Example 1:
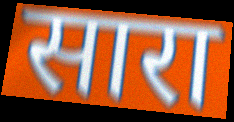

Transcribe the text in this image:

सारा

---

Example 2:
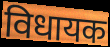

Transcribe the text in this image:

विधायक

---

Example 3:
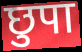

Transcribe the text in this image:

छुपा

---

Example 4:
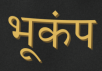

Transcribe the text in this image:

भूकंप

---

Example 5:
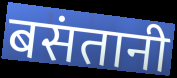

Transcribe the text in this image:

बसंतानी